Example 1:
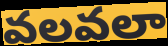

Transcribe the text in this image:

వలవలా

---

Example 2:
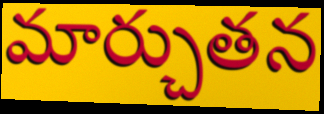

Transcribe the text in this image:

మార్చుతన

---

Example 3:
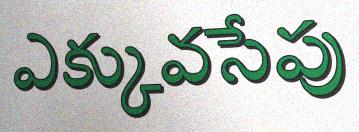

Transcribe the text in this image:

ఎక్కువసేపు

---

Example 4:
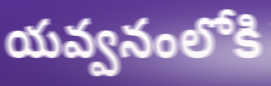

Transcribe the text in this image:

యవ్వనంలోకి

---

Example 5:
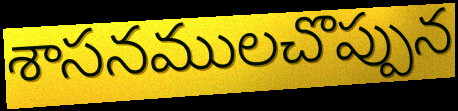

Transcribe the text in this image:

శాసనములచొప్పున